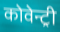
कोवेन्ट्री